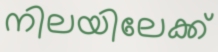
നിലയിലേക്ക്